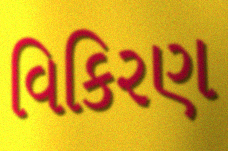
વિકિરણ